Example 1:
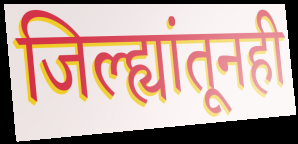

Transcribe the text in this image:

जिल्ह्यांतूनही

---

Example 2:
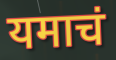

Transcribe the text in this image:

यमाचं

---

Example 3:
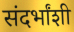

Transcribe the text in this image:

संदर्भांशी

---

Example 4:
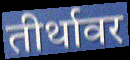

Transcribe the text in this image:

तीर्थावर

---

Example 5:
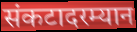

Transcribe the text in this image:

संकटादरम्यान